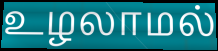
உழலாமல்